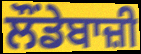
ਲੌਂਡੇਬਾਜ਼ੀ